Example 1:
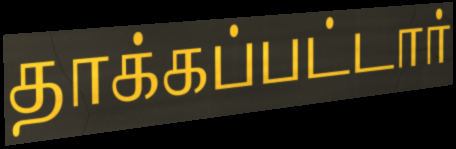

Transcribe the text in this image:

தாக்கப்பட்டார்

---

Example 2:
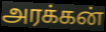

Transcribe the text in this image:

அரக்கன்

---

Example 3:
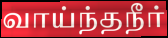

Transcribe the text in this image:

வாய்ந்தநீர்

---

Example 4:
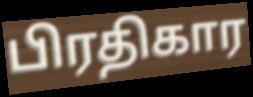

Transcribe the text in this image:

பிரதிகார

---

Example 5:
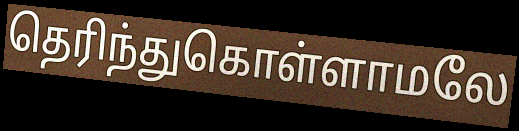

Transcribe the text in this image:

தெரிந்துகொள்ளாமலே